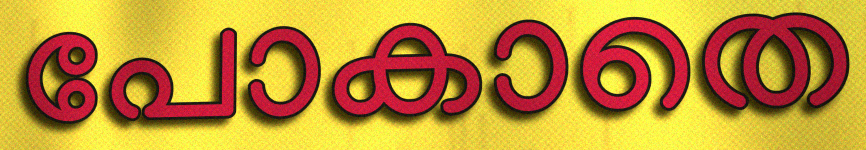
പോകാതെ